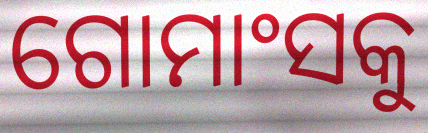
ଗୋମାଂସକୁ